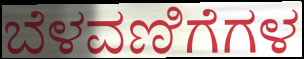
ಬೆಳವಣಿಗೆಗಳ